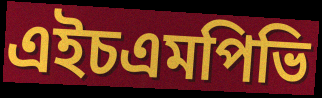
এইচএমপিভি